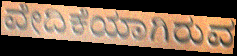
ವೇದಿಕೆಯಾಗಿರುವ